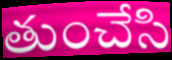
తుంచేసి